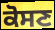
ਕੋਸਣ